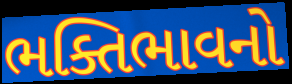
ભક્તિભાવનો